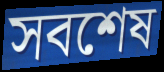
সবশেষ